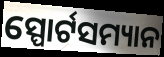
ସ୍ପୋର୍ଟସମ୍ୟାନ